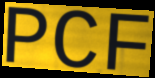
PCF